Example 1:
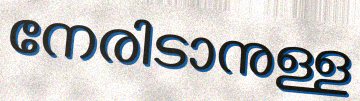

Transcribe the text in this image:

നേരിടാനുള്ള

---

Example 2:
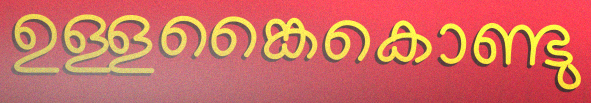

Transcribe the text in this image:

ഉള്ളങ്കൈകൊണ്ടു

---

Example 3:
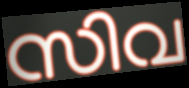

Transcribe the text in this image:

സിവ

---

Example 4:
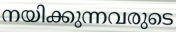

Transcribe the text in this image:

നയിക്കുന്നവരുടെ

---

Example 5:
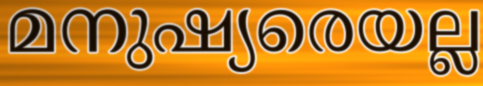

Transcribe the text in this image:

മനുഷ്യരെയല്ല